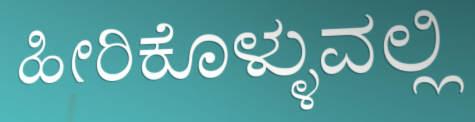
ಹೀರಿಕೊಳ್ಳುವಲ್ಲಿ